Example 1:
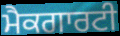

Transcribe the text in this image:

ਮੈਕਗਾਰਟੀ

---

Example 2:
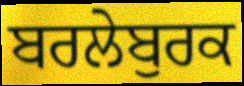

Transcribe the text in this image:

ਬਰਲੇਬੁਰਕ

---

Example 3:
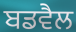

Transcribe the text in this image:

ਬਡਵੈਲ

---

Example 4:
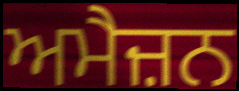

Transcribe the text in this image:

ਅਮੈਜ਼ਨ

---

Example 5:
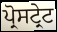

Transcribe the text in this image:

ਪ੍ਰੋਸਟ੍ਰੇਟ